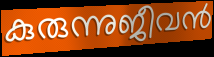
കുരുന്നുജീവൻ